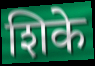
शिके